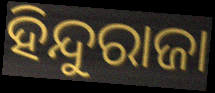
ହିନ୍ଦୁରାଜା